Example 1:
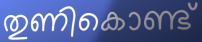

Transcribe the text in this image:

തുണികൊണ്ട്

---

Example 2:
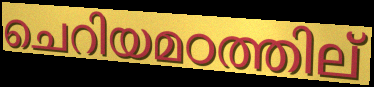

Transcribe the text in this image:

ചെറിയമഠത്തില്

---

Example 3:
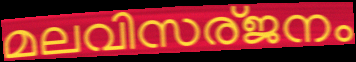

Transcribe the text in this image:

മലവിസര്ജനം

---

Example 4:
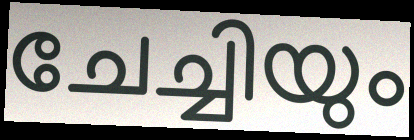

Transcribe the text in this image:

ചേച്ചിയും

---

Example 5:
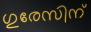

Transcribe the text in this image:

ഗുരേസിന്